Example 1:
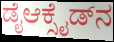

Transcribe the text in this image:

ಡೈಆಕ್ಸೈಡ್‌ನ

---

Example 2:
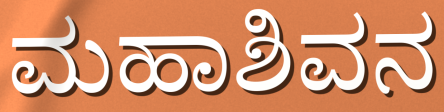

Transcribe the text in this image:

ಮಹಾಶಿವನ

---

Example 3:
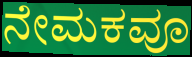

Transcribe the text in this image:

ನೇಮಕವೂ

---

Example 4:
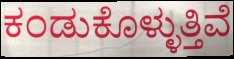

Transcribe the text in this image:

ಕಂಡುಕೊಳ್ಳುತ್ತಿವೆ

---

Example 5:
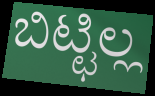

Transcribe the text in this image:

ಬಿಟ್ಟಿಲ್ಲ